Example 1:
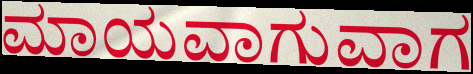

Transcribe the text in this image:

ಮಾಯವಾಗುವಾಗ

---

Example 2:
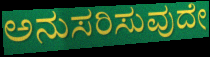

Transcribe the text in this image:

ಅನುಸರಿಸುವುದೇ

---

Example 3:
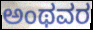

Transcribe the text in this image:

ಅಂಥವರ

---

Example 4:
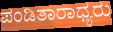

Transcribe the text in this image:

ಪಂಡಿತಾರಾಧ್ಯರು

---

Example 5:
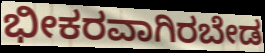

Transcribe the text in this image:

ಭೀಕರವಾಗಿರಬೇಡ